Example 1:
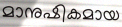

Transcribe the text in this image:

മാനുഷികമായ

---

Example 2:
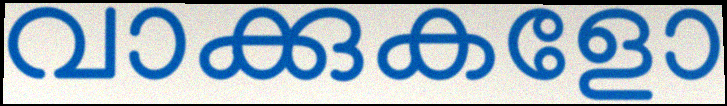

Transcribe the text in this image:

വാക്കുകളോ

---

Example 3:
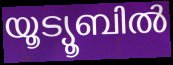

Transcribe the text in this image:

യൂട്യൂബിൽ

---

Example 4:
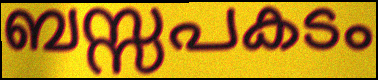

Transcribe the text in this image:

ബസ്സപകടം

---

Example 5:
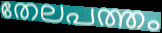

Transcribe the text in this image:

തേലപത്തം